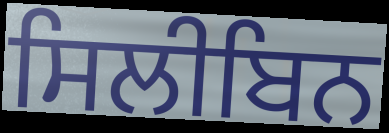
ਸਿਲੀਬਿਨ